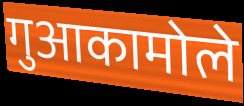
गुआकामोले